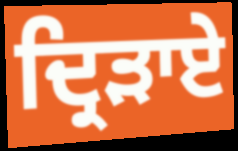
ਦ੍ਰਿੜਾਏ